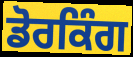
ਡੋਰਕਿੰਗ